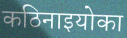
कठिनाइयोका